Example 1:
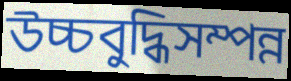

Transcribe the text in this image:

উচ্চবুদ্ধিসম্পন্ন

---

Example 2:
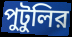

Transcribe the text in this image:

পুটুলির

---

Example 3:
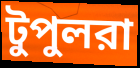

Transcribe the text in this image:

টুপুলরা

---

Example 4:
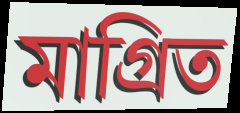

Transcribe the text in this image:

মাগ্রিত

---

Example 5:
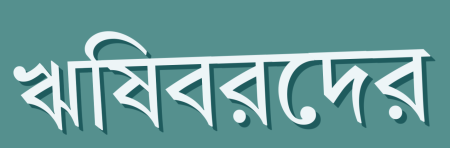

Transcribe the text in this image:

ঋষিবরদের